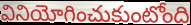
వినియోగించుకుంటోంది